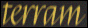
terram